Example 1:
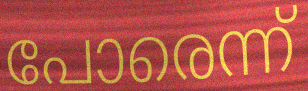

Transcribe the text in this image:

പോരെന്ന്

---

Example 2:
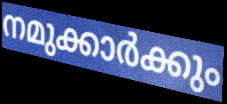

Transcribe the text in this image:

നമുക്കാർക്കും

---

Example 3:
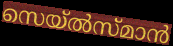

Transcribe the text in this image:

സെയ്ൽസ്മാൻ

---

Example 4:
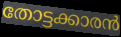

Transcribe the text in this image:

തോട്ടക്കാരൻ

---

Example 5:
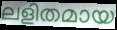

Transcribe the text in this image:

ലളിതമായ